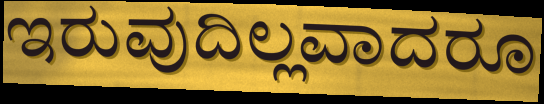
ಇರುವುದಿಲ್ಲವಾದರೂ